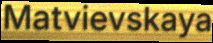
Matvievskaya